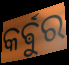
କର୍ଵୁର